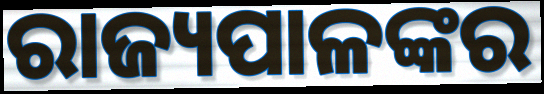
ରାଜ୍ୟପାଳଙ୍କର